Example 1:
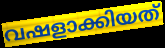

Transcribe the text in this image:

വഷളാക്കിയത്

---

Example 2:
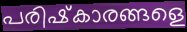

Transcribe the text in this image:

പരിഷ്‌കാരങ്ങളെ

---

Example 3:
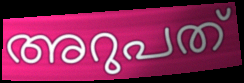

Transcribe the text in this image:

അറുപത്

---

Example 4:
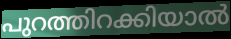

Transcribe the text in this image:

പുറത്തിറക്കിയാൽ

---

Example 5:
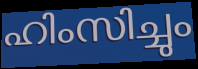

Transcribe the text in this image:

ഹിംസിച്ചും